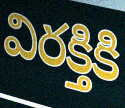
విరక్తికి